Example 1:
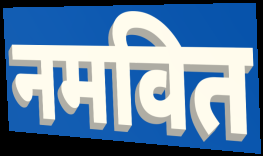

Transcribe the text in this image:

नमवित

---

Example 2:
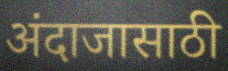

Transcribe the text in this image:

अंदाजासाठी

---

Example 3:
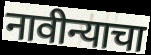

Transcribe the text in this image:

नावीन्याचा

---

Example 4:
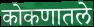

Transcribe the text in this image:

कोकणातले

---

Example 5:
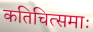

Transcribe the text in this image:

कतिचित्समाः